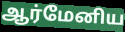
ஆர்மேனிய